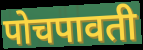
पोचपावती